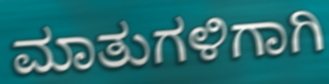
ಮಾತುಗಳಿಗಾಗಿ